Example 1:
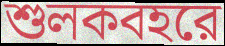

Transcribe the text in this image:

শুলকবহরে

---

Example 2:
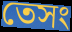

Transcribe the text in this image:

তেসং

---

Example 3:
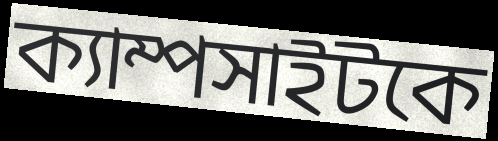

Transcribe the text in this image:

ক্যাম্পসাইটকে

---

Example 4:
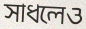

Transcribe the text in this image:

সাধলেও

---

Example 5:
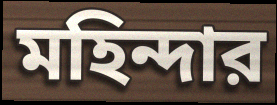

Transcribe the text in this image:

মহিন্দার